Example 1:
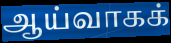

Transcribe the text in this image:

ஆய்வாகக்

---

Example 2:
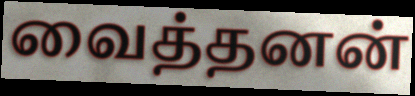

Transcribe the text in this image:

வைத்தனன்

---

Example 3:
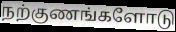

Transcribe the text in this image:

நற்குணங்களோடு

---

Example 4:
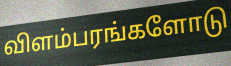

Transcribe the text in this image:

விளம்பரங்களோடு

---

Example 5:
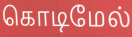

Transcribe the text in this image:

கொடிமேல்